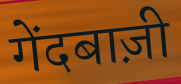
गेंदबाज़ी